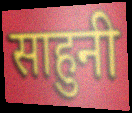
साहुनी